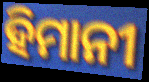
ହିମାନୀ